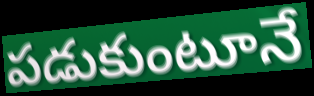
పడుకుంటూనే